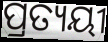
ପ୍ରତ୍ୟୟୀ